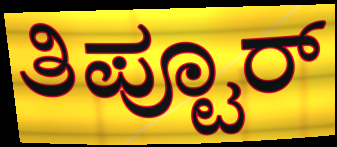
ತಿಪ್ಟೂರ್